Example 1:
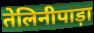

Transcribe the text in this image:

तेलिनीपाड़ा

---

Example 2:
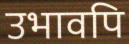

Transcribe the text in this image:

उभावपि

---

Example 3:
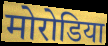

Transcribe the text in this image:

मोरोडिया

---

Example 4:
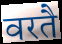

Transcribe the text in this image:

वरतै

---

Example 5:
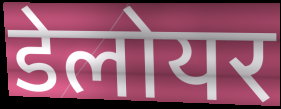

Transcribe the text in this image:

डेलोयर